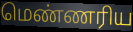
மெண்ணரிய